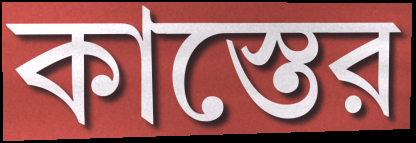
কাস্তের